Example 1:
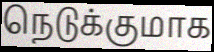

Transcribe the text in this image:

நெடுக்குமாக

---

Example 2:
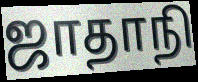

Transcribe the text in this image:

ஜாதாநி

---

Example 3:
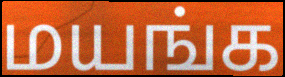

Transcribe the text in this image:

மயங்க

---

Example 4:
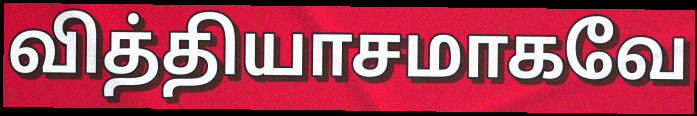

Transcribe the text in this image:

வித்தியாசமாகவே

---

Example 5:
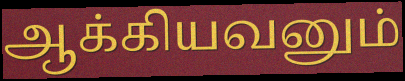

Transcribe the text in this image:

ஆக்கியவனும்